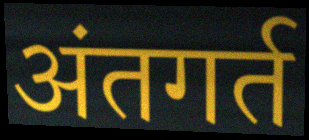
अंतगर्त